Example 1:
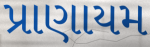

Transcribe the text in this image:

પ્રાણાયમ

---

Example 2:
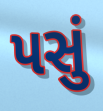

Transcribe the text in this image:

પસું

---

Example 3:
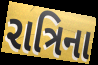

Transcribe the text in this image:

રાત્રિના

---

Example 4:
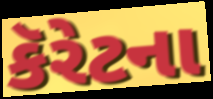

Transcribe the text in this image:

કૅરેટના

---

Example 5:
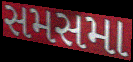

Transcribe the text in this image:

સમસમા